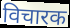
विचारक